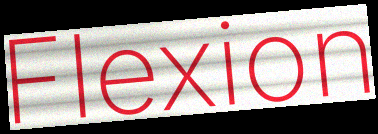
Flexion